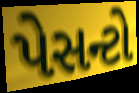
પેસન્ટો